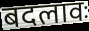
बदलावः